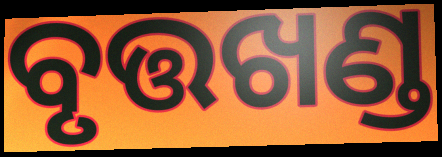
ବୃତ୍ତଖଣ୍ଡ